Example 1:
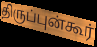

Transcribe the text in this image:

திருப்புன்கூர்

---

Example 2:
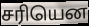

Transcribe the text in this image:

சரியென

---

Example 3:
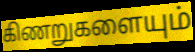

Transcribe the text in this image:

கிணறுகளையும்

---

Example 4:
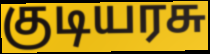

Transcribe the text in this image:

குடியரசு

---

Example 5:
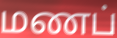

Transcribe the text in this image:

மணப்